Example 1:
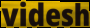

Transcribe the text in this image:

videsh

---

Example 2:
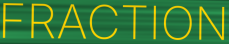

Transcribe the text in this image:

FRACTION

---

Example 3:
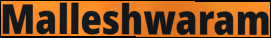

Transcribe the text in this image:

Malleshwaram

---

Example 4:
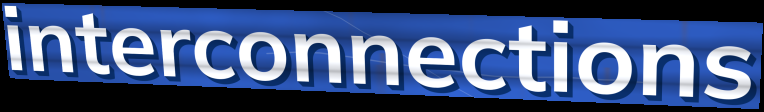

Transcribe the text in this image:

interconnections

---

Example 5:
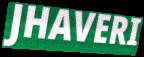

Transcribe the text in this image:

JHAVERI